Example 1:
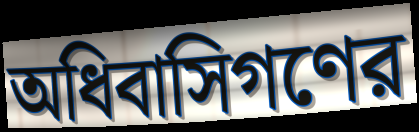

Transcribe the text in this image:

অধিবাসিগণের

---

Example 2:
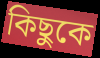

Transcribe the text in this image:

কিছুকে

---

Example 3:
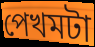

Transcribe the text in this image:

পেখমটা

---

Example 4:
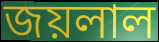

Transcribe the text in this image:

জয়লাল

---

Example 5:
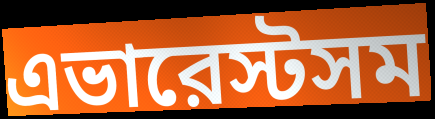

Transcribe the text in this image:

এভারেস্টসম